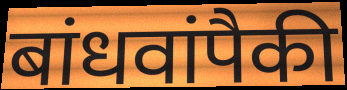
बांधवांपैकी